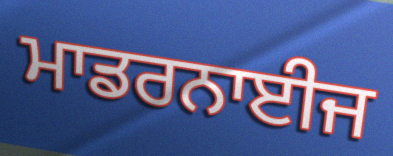
ਮਾਡਰਨਾਈਜ